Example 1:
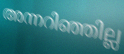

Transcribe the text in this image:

അന്നറിഞ്ഞില്ല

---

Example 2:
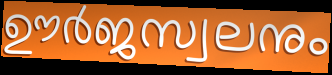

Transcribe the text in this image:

ഊർജസ്വലനും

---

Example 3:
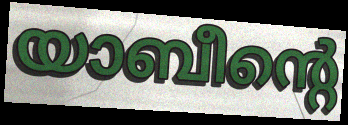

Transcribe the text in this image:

യാബീന്റെ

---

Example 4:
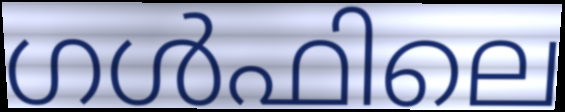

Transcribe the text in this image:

ഗൾഫിലെ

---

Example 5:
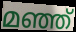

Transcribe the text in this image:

മഞ്ഞ്